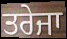
ਤਰੇਜਾ